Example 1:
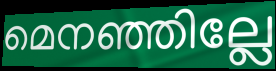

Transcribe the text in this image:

മെനഞ്ഞില്ലേ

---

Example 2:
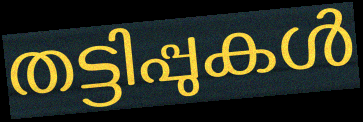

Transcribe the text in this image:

തട്ടിപ്പുകൾ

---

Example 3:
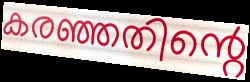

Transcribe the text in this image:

കരഞ്ഞതിന്റെ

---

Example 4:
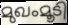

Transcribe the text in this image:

മുഖംമൂടി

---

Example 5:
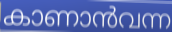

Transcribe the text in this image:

കാണാൻവന്ന